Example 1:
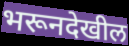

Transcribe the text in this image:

भरूनदेखील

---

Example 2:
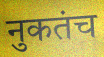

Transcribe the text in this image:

नुकतंच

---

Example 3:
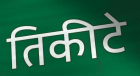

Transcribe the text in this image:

तिकीटे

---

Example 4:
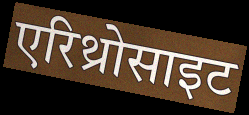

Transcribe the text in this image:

एरिथ्रोसाइट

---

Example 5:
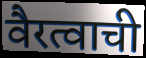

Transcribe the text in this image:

वैरत्वाची